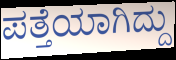
ಪತ್ತೆಯಾಗಿದ್ದು